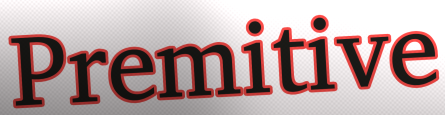
Premitive